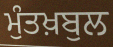
ਮੁੰਤਖ਼ਬੁਲ